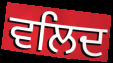
ਵਲਿਦ